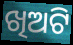
ଖିଅଟି